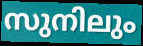
സുനിലും